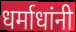
धर्माधांनी